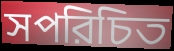
সপরিচিত